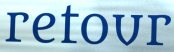
retour